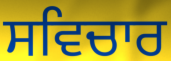
ਸਵਿਚਾਰ